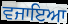
ਵਜਾਇਆ